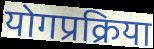
योगप्रक्रिया